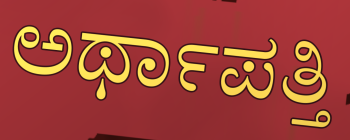
ಅರ್ಥಾಪತ್ತಿ